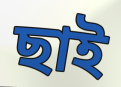
ছাই